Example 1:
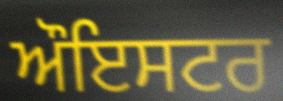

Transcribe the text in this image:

ਔਇਸਟਰ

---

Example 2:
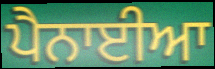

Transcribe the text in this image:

ਪੈਨਾਈਆ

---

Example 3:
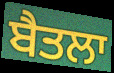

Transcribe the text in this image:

ਬੈਤਲਾ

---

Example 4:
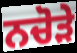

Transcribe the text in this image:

ਨਚੋੜੇ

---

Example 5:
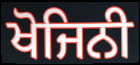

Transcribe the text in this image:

ਖੋਜਿਨੀ